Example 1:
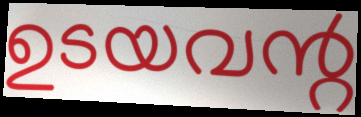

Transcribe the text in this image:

ഉടയവന്റ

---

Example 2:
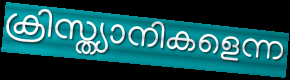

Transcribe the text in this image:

ക്രിസ്ത്യാനികളെന്ന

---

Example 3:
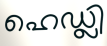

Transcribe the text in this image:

ഹെഡ്ലി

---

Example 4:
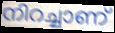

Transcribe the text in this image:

നിറച്ചാണ്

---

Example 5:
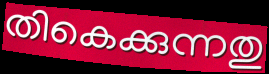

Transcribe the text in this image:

തികെക്കുന്നതു